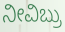
ನೀವಿಬ್ರು